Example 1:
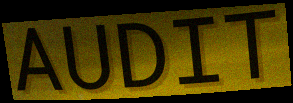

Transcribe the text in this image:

AUDIT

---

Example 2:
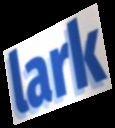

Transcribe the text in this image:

lark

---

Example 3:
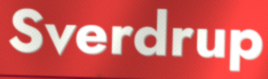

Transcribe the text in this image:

Sverdrup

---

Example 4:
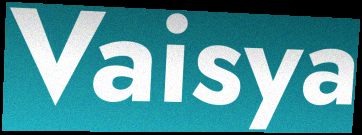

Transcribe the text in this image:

Vaisya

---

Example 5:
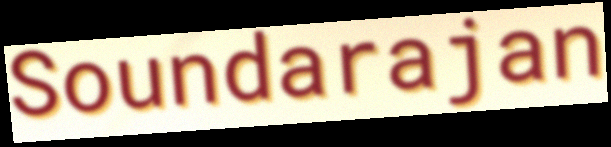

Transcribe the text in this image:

Soundarajan